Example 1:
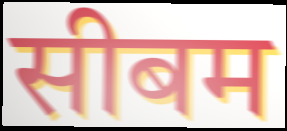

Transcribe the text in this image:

सीबम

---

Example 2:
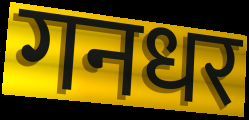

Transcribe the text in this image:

गनधर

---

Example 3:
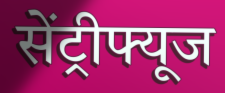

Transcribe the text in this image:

सेंट्रीफ्यूज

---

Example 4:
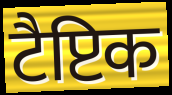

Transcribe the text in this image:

टैप्टिक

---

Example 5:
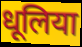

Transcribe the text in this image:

धूलिया